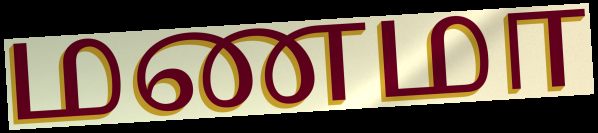
மணமா